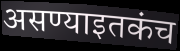
असण्याइतकंच